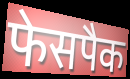
फेसपैक